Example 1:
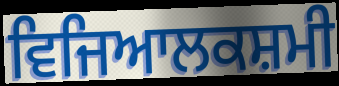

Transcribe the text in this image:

ਵਿਜਿਆਲਕਸ਼ਮੀ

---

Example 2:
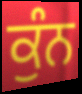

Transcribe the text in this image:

ਕੁੰਨ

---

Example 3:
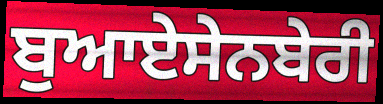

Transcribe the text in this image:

ਬੁਆਏਸੇਨਬੇਰੀ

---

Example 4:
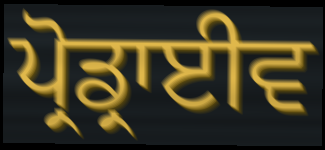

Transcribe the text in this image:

ਪ੍ਰੋਡ੍ਰਾਈਵ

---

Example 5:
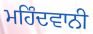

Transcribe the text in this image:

ਮਹਿੰਦਵਾਨੀ